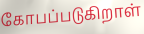
கோபப்படுகிறாள்